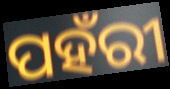
ପହଁରୀ